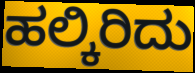
ಹಲ್ಕಿರಿದು